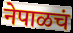
नेपाळचं